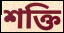
শক্তি